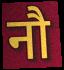
नौ